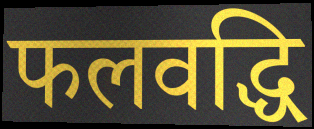
फलवद्धि